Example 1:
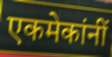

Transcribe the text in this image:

एकमेकांनीं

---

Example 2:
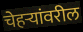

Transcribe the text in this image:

चेहऱ्यांवरील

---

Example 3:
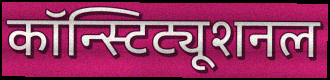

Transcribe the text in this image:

कॉन्स्टिट्यूशनल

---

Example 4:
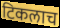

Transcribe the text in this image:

टिकलाच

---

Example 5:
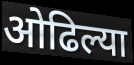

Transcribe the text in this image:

ओढिल्या